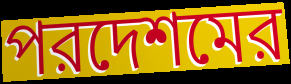
পরদেশমের